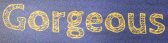
Gorgeous